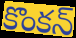
కొంకన్